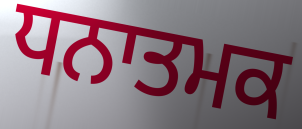
ਧਨਾਤਮਕ